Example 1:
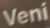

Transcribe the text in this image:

Veni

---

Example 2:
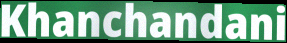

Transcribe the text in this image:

Khanchandani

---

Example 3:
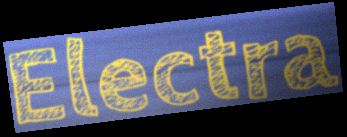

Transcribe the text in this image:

Electra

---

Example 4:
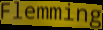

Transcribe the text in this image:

Flemming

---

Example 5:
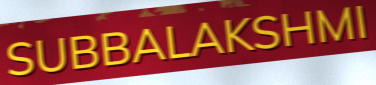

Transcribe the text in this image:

SUBBALAKSHMI